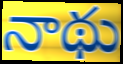
నాథు